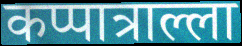
कप्पात्राल्ला